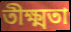
তীক্ষ্মতা